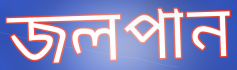
জলপান